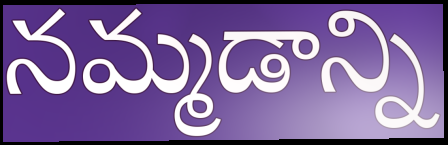
నమ్మడాన్ని